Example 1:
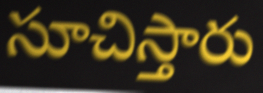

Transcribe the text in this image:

సూచిస్తారు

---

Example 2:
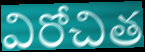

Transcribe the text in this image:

విరోచిత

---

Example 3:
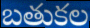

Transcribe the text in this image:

బతుకల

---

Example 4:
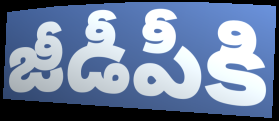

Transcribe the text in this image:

జీడీపీకి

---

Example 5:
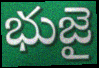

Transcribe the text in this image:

భుజై